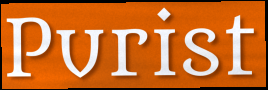
Purist